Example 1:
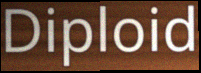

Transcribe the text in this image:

Diploid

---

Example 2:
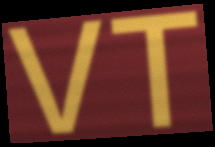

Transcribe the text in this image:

VT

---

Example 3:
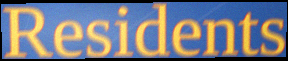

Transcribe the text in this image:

Residents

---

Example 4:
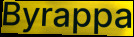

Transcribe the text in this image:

Byrappa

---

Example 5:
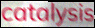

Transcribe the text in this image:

catalysis